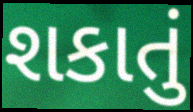
શકાતું